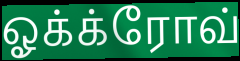
ஓக்க்ரோவ்